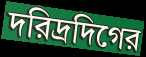
দরিদ্রদিগের